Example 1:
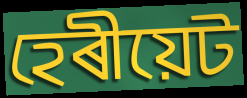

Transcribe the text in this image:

হেৰীয়েট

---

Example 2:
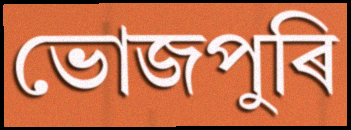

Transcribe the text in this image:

ভোজপুৰি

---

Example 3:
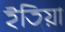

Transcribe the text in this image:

ইতিয়া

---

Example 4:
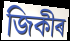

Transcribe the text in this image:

জিকীৰ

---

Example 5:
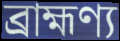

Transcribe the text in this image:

ব্ৰাহ্মণ্য